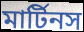
মার্টিনস